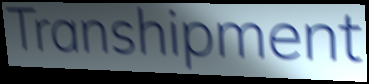
Transhipment